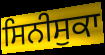
ਸਿਨੀਸੁਕਾ